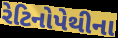
રેટિનોપેથીના